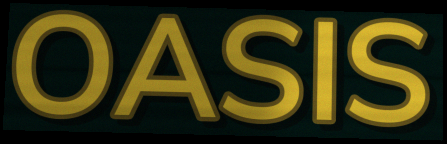
OASIS